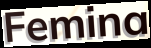
Femina